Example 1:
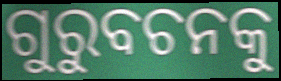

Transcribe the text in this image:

ଗୁରୁବଚନକୁ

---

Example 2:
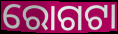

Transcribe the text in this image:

ରୋଗଟା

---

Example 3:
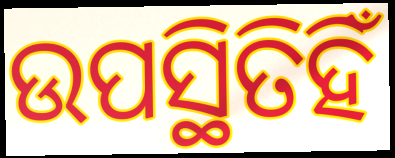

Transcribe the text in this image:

ଉପସ୍ଥିତିହିଁ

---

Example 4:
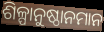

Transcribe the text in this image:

ଶିଳ୍ପାନୁଷ୍ଠାନମାନ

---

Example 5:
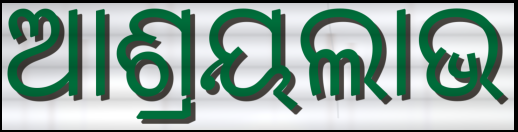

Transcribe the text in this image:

ଆଶ୍ରୟଲାଭ